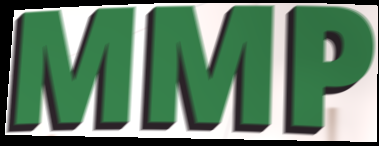
MMP